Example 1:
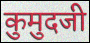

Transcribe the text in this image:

कुमुदजी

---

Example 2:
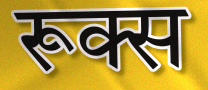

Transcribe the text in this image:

रूक्स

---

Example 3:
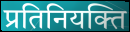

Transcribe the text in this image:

प्रतिनियक्ति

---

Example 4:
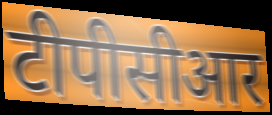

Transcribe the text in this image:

टीपीसीआर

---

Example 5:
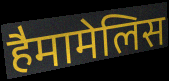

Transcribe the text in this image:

हैमामेलिस